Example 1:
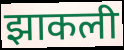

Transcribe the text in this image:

झाकली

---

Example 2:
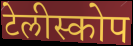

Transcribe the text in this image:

टेलीस्कोप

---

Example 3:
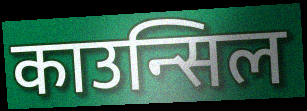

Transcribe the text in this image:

काउन्सिल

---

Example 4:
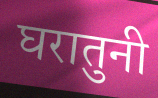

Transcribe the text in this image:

घरातुनी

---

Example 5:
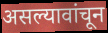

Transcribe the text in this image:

असल्यावांचून